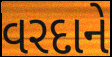
વરદાને